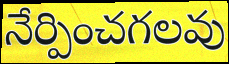
నేర్పించగలవు